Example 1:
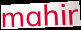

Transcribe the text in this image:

mahir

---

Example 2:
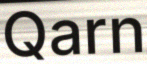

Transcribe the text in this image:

Qarn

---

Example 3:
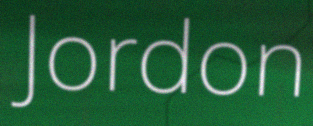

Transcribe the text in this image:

Jordon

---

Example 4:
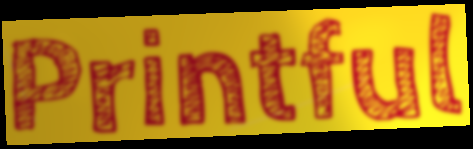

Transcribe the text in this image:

Printful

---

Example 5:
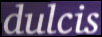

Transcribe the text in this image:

dulcis